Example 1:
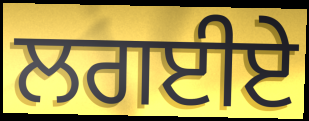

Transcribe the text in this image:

ਲਗਈਏ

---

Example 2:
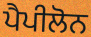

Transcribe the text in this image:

ਪੈਪੀਲੋਨ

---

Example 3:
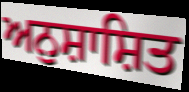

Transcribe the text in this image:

ਅਨੁਸ਼ਾਸ਼ਿਤ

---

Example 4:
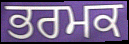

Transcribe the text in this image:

ਭਰਮਕ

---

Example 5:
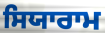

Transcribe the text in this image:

ਸਿਯਾਰਾਮ